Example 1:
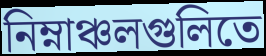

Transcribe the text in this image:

নিম্নাঞ্চলগুলিতে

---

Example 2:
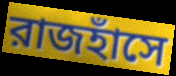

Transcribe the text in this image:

রাজহাঁসে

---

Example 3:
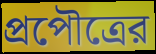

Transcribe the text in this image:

প্রপৌত্রের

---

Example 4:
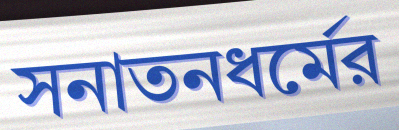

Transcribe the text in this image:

সনাতনধর্মের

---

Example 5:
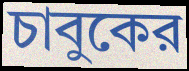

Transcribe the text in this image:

চাবুকের